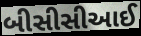
બીસીસીઆઈ